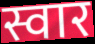
स्‍वार